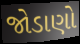
જોડાણો